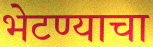
भेटण्याचा